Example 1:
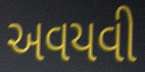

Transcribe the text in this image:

અવયવી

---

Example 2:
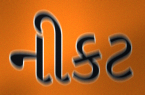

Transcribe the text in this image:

નીકટ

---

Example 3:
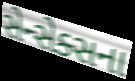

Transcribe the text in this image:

સેન્સેક્સના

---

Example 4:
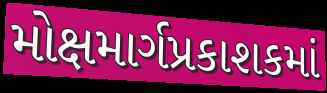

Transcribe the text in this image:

મોક્ષમાર્ગપ્રકાશકમાં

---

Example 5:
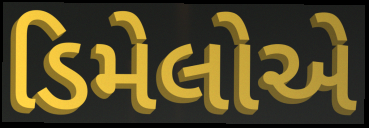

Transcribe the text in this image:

ડિમેલોએ